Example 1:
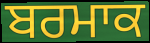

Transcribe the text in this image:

ਬਰਮਾਕ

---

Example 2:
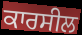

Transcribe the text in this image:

ਕਾਰਸੀਲ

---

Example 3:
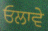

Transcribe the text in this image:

ਓਲਾਵੇ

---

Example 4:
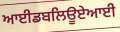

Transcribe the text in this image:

ਆਈਡਬਲਿਊਏਆਈ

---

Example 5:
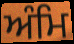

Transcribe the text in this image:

ਅੰਮਿ